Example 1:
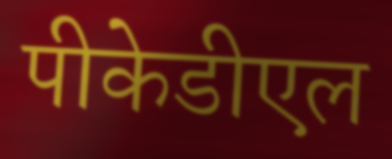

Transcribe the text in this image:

पीकेडीएल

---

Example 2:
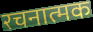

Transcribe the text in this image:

रचनात्मक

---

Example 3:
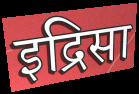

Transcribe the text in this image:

इद्रिसा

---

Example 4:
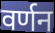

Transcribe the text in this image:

वर्णन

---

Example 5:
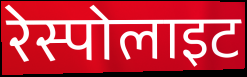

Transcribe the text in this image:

रेस्पोलाइट